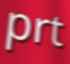
prt